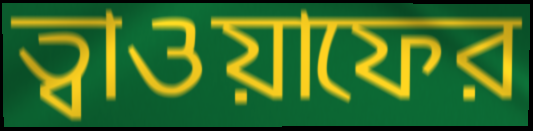
ত্বাওয়াফের